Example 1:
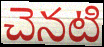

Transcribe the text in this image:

చెనటి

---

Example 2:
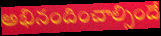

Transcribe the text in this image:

అభినందించాల్సిందే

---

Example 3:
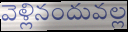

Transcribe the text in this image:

వెళ్లినందువల్ల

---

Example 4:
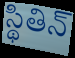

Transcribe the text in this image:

స్థితిన్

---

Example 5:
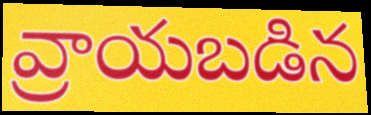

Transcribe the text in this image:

వ్రాయబడిన